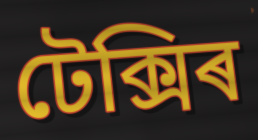
টেক্সিৰ